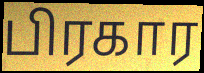
பிரகார